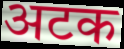
अटक